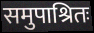
समुपाश्रितः